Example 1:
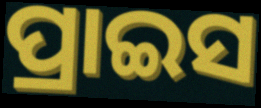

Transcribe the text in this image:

ପ୍ରାଇସ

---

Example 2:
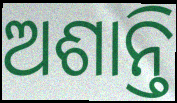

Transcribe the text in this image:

ଅଶାନ୍ତି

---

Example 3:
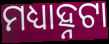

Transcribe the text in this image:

ମଧ୍ୟାହ୍ନଟା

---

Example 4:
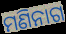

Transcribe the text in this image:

ମଣିନାଗ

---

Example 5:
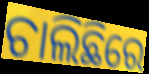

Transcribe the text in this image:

ଚାଲିଛିରେ